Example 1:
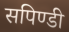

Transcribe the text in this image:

सपिण्डी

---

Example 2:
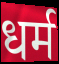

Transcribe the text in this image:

धर्म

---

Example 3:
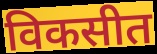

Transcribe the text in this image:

विकसीत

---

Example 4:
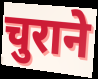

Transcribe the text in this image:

चुराने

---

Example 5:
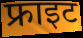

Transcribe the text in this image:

फ्राइट